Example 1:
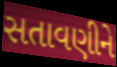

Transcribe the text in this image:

સતાવણીને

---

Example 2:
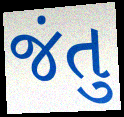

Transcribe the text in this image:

જંતુ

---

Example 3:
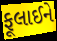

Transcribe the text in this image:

ફૂલાઈને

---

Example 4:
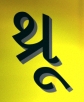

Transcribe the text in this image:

થ્રૂ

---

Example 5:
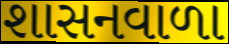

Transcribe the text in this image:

શાસનવાળા